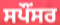
ਸਪੌਂਸਰ